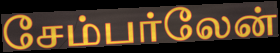
சேம்பர்லேன்